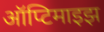
ऑप्टिमाइझ